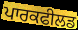
ਪਾਰਕਫੀਲਡ